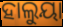
ହାଲୁୟା